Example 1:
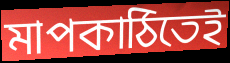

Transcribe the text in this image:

মাপকাঠিতেই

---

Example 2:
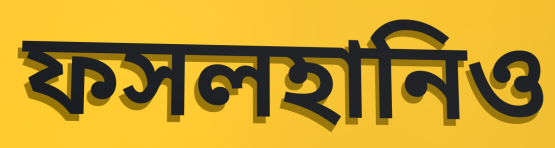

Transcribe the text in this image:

ফসলহানিও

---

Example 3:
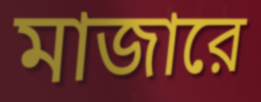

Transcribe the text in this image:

মাজারে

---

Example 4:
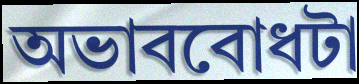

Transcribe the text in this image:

অভাববোধটা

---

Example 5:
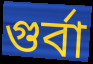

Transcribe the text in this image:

গুর্বা